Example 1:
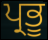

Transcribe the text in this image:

ਪ੍ਰਭੂ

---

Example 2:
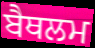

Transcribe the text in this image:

ਬੈਥਲਮ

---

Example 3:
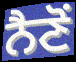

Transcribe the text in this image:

ਨੈਣੋਂ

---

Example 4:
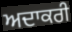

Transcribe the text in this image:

ਅਦਾਕਰੀ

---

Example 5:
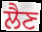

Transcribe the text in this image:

ਲੈਣ